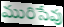
మురిసేవు